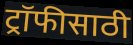
ट्रॉफीसाठी